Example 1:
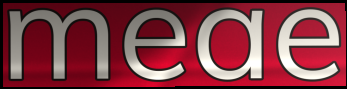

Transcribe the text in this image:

meae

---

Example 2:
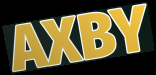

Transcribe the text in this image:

AXBY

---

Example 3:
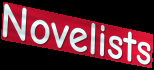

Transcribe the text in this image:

Novelists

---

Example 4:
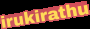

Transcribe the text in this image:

irukirathu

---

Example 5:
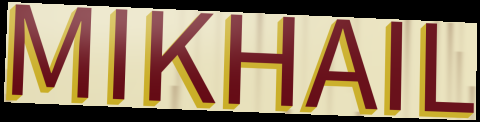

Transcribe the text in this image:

MIKHAIL